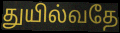
துயில்வதே